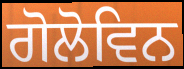
ਗੋਲੋਵਿਨ